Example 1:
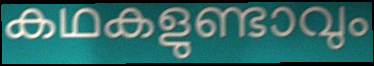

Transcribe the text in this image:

കഥകളുണ്ടാവും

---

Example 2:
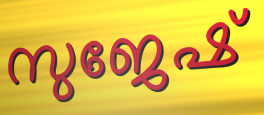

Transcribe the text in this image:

സുജേഷ്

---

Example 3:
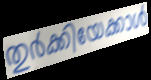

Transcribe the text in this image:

തുർക്കിയേക്കാൾ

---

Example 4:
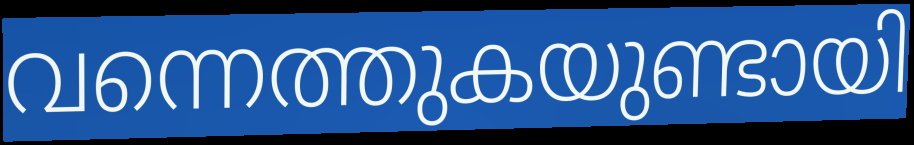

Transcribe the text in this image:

വന്നെത്തുകയുണ്ടായി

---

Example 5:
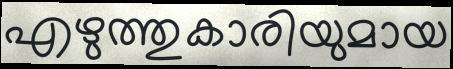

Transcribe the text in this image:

എഴുത്തുകാരിയുമായ